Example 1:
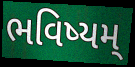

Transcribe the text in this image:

ભવિષ્યમ્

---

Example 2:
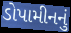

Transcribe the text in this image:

ડોપામીનનું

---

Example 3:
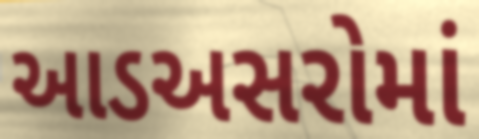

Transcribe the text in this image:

આડઅસરોમાં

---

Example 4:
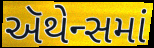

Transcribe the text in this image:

ઍથેન્સમાં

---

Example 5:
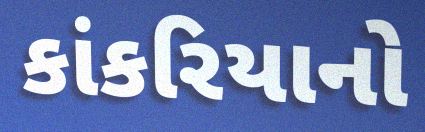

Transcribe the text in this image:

કાંકરિયાનો